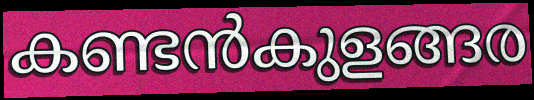
കണ്ടൻകുളങ്ങര